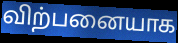
விற்பனையாக